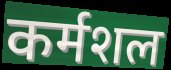
कर्मशल